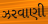
ઝરવાણી